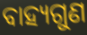
ବାହ୍ୟଗୁଣ